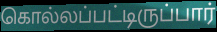
கொல்லப்பட்டிருப்பார்